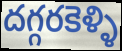
దగ్గరకెళ్ళి